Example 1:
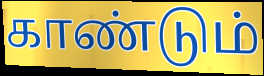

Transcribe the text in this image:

காண்டும்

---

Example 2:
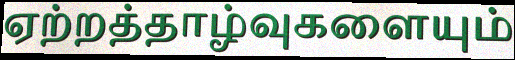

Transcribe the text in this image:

ஏற்றத்தாழ்வுகளையும்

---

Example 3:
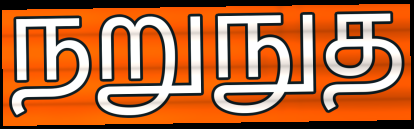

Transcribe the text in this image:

நறுநுத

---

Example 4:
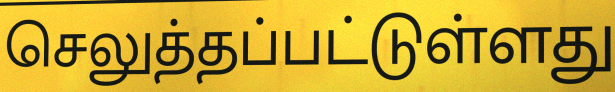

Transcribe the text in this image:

செலுத்தப்பட்டுள்ளது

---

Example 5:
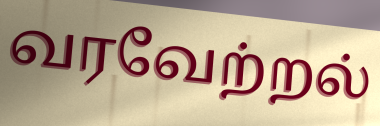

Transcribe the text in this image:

வரவேற்றல்